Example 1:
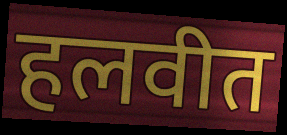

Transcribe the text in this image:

हलवीत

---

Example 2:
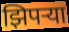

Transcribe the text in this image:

झिपऱ्या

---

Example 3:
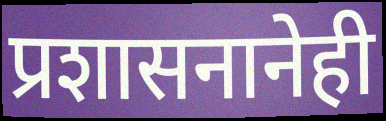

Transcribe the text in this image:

प्रशासनानेही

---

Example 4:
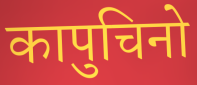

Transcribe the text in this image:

कापुचिनो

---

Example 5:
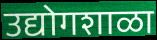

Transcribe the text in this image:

उद्योगशाळा